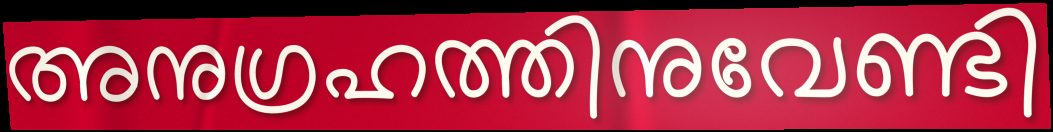
അനുഗ്രഹത്തിനുവേണ്ടി